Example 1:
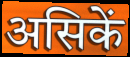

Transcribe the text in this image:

असिकें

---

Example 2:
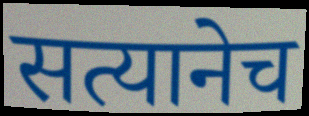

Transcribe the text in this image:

सत्यानेच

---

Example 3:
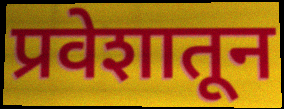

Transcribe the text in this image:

प्रवेशातून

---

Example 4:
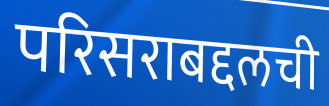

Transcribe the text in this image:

परिसराबद्दलची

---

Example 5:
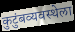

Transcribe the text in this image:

कुटुंबव्यवस्थेला